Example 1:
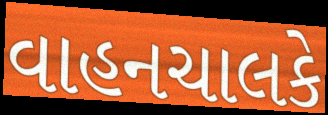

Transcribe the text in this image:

વાહનચાલકે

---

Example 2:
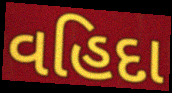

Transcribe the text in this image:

વહિદા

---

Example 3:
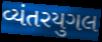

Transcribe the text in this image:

વ્યંતરયુગલ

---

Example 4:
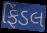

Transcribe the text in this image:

ફિંડલ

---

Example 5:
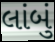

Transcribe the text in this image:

લાંબું